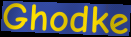
Ghodke